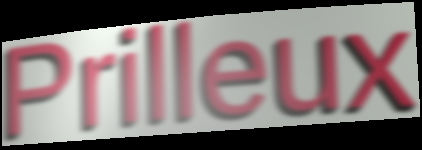
Prilleux